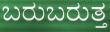
ಬರುಬರುತ್ತ